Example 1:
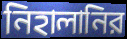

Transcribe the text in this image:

নিহালানির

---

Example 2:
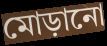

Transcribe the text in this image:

মোড়ানো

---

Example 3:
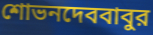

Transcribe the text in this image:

শোভনদেববাবুর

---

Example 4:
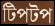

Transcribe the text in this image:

টিপটপ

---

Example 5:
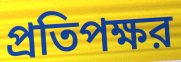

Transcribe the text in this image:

প্রতিপক্ষর